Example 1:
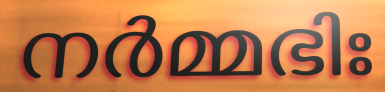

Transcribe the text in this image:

നർമ്മഭിഃ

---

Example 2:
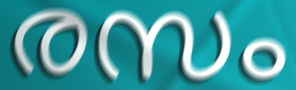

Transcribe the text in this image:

രസം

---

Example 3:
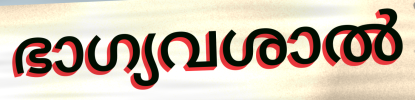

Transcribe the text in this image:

ഭാഗ്യവശാൽ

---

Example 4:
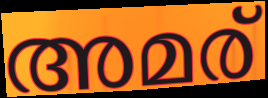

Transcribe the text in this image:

അമര്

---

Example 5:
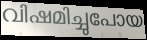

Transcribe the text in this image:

വിഷമിച്ചുപോയ